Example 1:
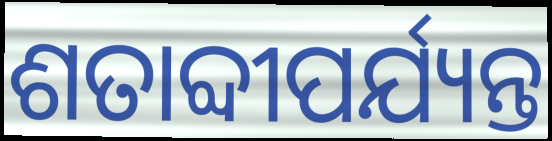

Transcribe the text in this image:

ଶତାବ୍ଦୀପର୍ଯ୍ୟନ୍ତ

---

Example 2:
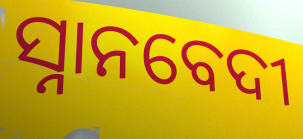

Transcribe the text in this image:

ସ୍ନାନବେଦୀ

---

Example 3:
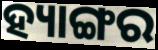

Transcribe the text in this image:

ହ୍ୟାଙ୍ଗର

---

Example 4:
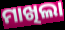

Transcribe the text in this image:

ମାଖିଲା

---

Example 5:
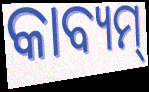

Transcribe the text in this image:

କାବ୍ୟମ୍